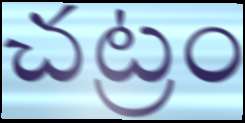
చట్రం